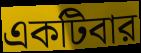
একটিবার